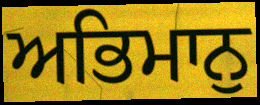
ਅਭਿਮਾਨੁ